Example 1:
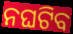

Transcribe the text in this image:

ନଘଟିବ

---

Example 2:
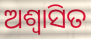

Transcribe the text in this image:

ଅଶ୍ୱାସିତ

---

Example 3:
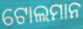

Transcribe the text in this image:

ଟୋଲମାନ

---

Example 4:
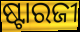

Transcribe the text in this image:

ଷ୍ଟାରଜୀ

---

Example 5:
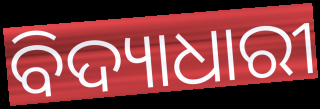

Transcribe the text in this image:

ବିଦ୍ୟାଧାରୀ